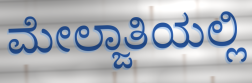
ಮೇಲ್ಜಾತಿಯಲ್ಲಿ